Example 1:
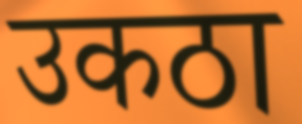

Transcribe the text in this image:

उकठा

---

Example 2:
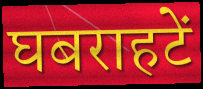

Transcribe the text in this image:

घबराहटें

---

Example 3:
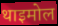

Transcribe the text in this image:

थाइमोल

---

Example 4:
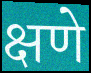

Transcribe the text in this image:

क्षणे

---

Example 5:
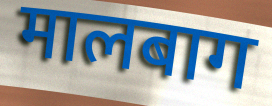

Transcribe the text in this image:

मालबाग